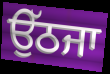
ਉੱਠਜਾ